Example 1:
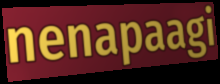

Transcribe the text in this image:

nenapaagi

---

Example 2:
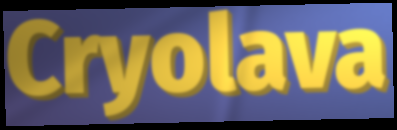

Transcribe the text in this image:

Cryolava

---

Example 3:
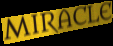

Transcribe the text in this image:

MIRACLE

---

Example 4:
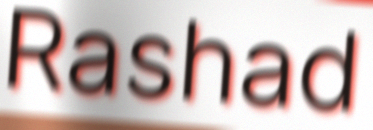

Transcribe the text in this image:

Rashad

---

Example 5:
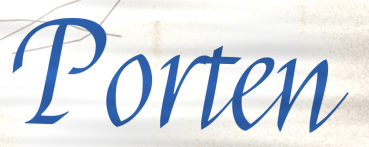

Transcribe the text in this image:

Porten